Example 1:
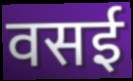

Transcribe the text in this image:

वसई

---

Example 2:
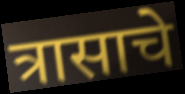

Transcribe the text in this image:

त्रासाचे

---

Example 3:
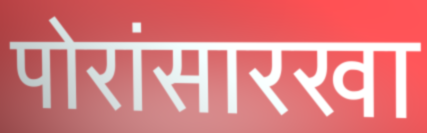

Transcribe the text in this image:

पोरांसारखा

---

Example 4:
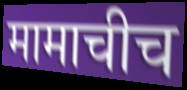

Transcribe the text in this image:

मामाचीच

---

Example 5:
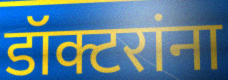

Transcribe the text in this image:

डॉक्टरांना